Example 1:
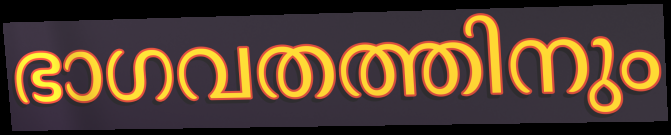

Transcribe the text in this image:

ഭാഗവതത്തിനും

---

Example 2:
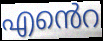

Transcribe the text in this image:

എൻെറ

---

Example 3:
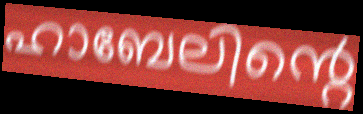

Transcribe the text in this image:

ഹാബേലിന്റെ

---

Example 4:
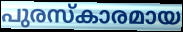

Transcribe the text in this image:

പുരസ്കാരമായ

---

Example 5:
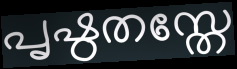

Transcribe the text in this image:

പൃഷ്ഠതസ്തേ